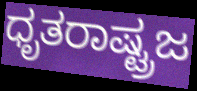
ಧೃತರಾಷ್ಟ್ರಜ